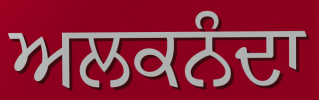
ਅਲਕਨੰਦਾ